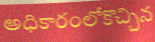
అధికారంలోకొచ్చిన